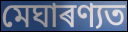
মেঘাৰণ্যত